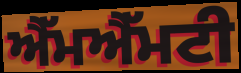
ਐੱਮਐੱਮਟੀ